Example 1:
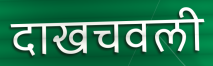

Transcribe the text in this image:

दाखचवली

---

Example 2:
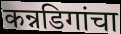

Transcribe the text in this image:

कन्नडिगांचा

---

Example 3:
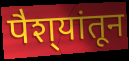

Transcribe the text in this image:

पैश्यांतून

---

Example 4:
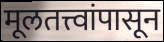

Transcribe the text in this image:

मूलतत्त्वांपासून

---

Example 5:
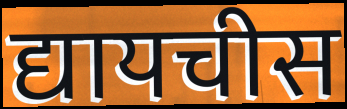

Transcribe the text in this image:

द्यायचीस